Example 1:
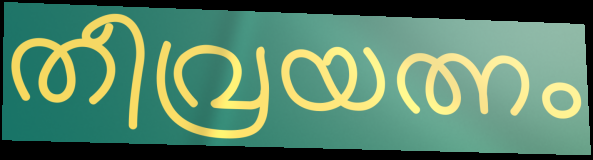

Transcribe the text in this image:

തീവ്രയത്നം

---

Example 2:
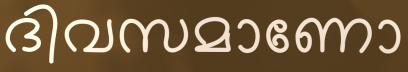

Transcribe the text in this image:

ദിവസമാണോ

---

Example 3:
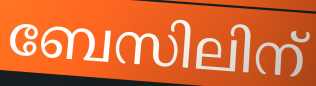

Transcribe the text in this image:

ബേസിലിന്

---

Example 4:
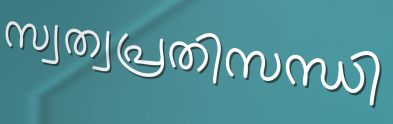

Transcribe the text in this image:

സ്വത്വപ്രതിസന്ധി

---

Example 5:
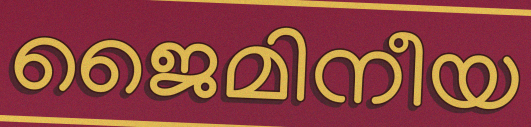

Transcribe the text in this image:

ജൈമിനീയ